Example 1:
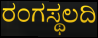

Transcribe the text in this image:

ರಂಗಸ್ಥಲದಿ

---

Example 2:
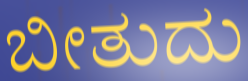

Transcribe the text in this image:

ಬೀತುದು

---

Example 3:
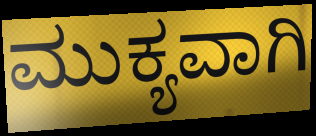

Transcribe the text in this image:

ಮುಕ್ಯವಾಗಿ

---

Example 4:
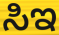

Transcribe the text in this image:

ಸಿಇ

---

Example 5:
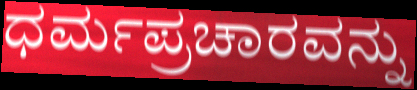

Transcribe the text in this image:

ಧರ್ಮಪ್ರಚಾರವನ್ನು